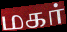
மகர்